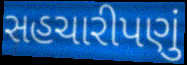
સહચારીપણું